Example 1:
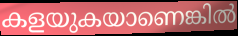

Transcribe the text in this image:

കളയുകയാണെങ്കിൽ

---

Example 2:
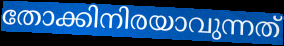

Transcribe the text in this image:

തോക്കിനിരയാവുന്നത്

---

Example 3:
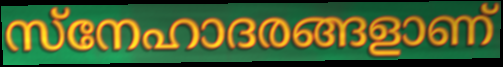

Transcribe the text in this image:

സ്നേഹാദരങ്ങളാണ്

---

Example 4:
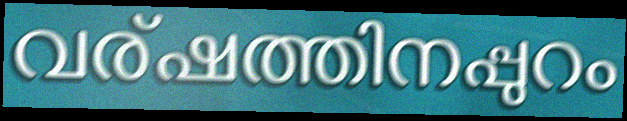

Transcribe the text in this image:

വര്ഷത്തിനപ്പുറം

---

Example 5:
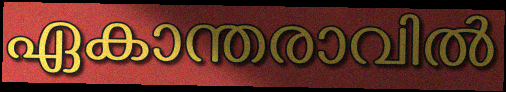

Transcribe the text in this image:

ഏകാന്തരാവിൽ